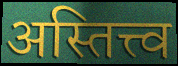
अस्तित्त्व